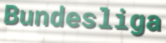
Bundesliga